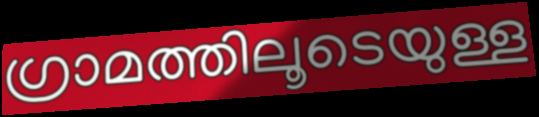
ഗ്രാമത്തിലൂടെയുള്ള